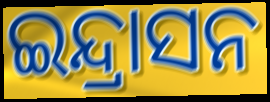
ଇନ୍ଦ୍ରାସନ